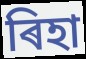
ৰিহা